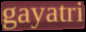
gayatri